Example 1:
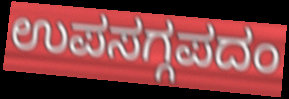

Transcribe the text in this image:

ಉಪಸಗ್ಗಪದಂ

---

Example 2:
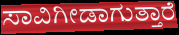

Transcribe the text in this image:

ಸಾವಿಗೀಡಾಗುತ್ತಾರೆ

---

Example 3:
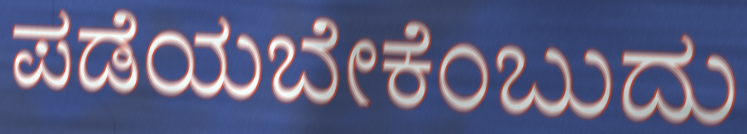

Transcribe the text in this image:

ಪಡೆಯಬೇಕೆಂಬುದು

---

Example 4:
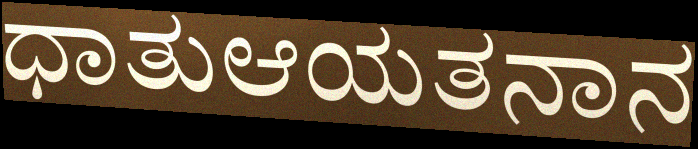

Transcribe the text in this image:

ಧಾತುಆಯತನಾನ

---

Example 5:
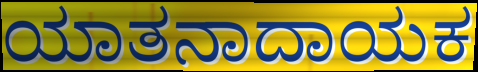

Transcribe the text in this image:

ಯಾತನಾದಾಯಕ